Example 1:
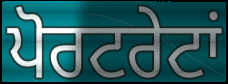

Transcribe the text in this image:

ਪੋਰਟਰੇਟਾਂ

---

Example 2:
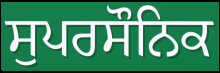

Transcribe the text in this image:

ਸੁਪਰਸੌਨਿਕ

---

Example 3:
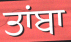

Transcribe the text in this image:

ਤਾਂਬਾ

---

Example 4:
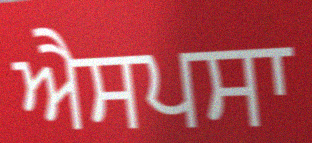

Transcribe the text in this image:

ਐਸਪਸਾ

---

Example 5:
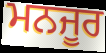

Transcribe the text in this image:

ਮਨਜੂਰ